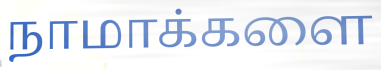
நாமாக்களை